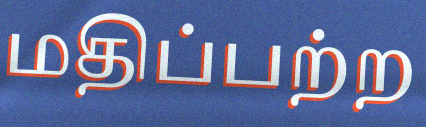
மதிப்பற்ற